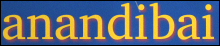
anandibai